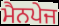
ਮੈਨਪੇਜ